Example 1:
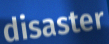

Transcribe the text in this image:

disaster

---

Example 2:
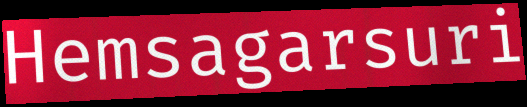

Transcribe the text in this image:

Hemsagarsuri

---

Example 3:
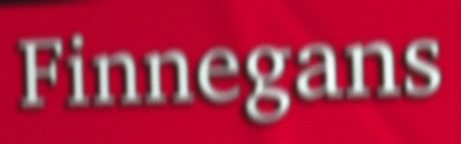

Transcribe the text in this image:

Finnegans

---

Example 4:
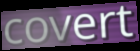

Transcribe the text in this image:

covert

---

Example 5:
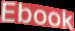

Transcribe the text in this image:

Ebook